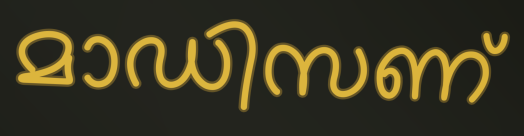
മാഡിസണ്